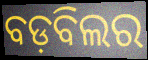
ବଡ଼ବିଲର